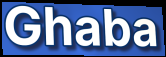
Ghaba